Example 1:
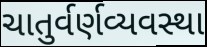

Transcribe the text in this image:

ચાતુર્વર્ણવ્યવસ્થા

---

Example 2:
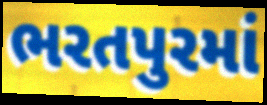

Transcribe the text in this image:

ભરતપુરમાં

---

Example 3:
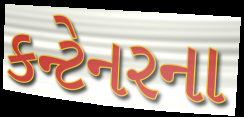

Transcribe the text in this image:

કન્ટેનરના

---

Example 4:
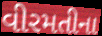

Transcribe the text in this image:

વીરમતીના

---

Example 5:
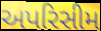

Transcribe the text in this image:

અપરિસીમ